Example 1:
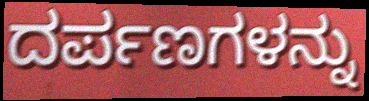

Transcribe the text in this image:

ದರ್ಪಣಗಳನ್ನು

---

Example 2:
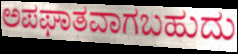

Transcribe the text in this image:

ಅಪಘಾತವಾಗಬಹುದು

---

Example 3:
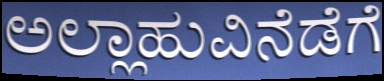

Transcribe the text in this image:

ಅಲ್ಲಾಹುವಿನೆಡೆಗೆ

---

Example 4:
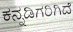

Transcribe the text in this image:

ಕನ್ನಡಿಗರಿಗಿದೆ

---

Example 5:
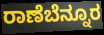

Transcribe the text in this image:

ರಾಣೆಬೆನ್ನೂರ